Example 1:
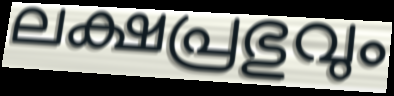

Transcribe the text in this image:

ലക്ഷപ്രഭുവും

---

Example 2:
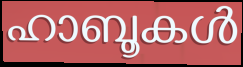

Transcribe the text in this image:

ഹാബൂകൾ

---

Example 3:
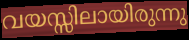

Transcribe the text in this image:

വയസ്സിലായിരുന്നു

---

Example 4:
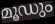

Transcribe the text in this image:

മൂഡും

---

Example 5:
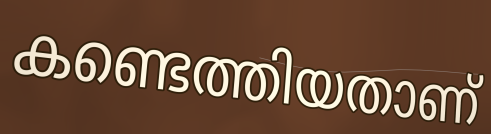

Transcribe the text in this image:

കണ്ടെത്തിയതാണ്